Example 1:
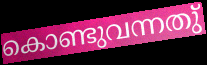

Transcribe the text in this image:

കൊണ്ടുവന്നതു്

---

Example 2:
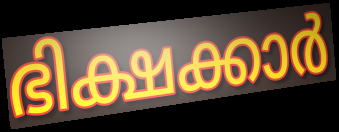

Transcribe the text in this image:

ഭിക്ഷക്കാർ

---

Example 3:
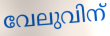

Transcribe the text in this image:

വേലുവിന്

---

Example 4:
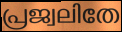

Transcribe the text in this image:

പ്രജ്വലിതേ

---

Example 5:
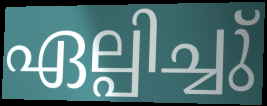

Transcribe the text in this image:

ഏല്പിച്ചു്